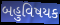
બહુવિષયક